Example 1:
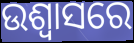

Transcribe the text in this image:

ଉଶ୍ଵାସରେ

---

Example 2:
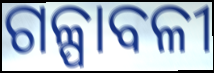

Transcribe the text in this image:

ଗଳ୍ପାବଳୀ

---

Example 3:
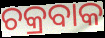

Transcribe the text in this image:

ଚକ୍ରବାକ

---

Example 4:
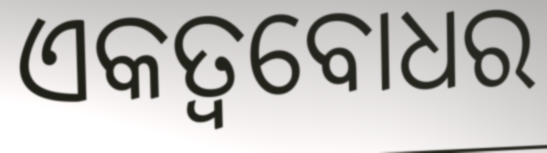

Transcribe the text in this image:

ଏକତ୍ୱବୋଧର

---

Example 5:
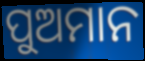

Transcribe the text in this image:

ପୁଅମାନ